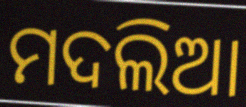
ମଦଲିଆ